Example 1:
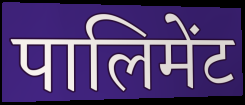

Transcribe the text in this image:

पालिमेंट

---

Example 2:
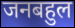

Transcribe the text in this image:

जनबहुल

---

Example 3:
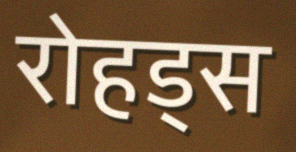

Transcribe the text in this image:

रोहड्स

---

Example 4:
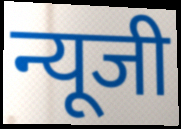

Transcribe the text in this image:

न्यूजी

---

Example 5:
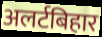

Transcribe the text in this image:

अलर्टबिहार